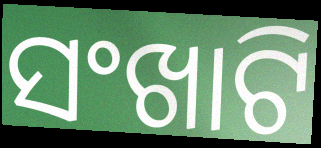
ସଂଖାଟି